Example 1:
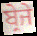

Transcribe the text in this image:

ਬ੍ਰੇਜੇ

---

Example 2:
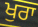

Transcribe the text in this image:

ਖੁਰਾ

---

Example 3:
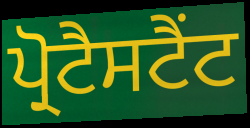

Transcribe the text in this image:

ਪ੍ਰੋਟੈਸਟੈਂਟ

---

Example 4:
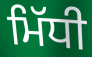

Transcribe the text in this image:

ਮਿੱਧੀ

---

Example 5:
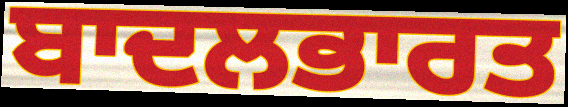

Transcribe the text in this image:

ਬਾਦਲਭਾਰਤ